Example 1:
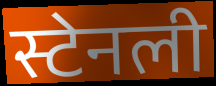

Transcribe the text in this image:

स्‍टेनली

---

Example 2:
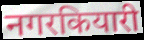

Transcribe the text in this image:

नगरकियारी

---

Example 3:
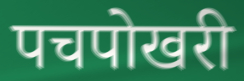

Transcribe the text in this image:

पचपोखरी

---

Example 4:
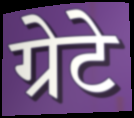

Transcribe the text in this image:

ग्रेटे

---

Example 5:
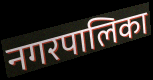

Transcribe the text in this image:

नगरपालिका